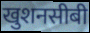
खुशनसीबी